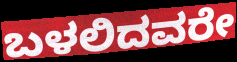
ಬಳಲಿದವರೇ